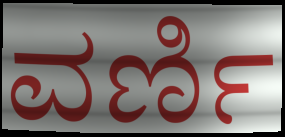
ವರ್ಣಿ